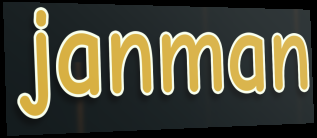
janman